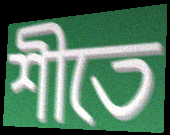
শীতে